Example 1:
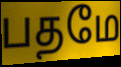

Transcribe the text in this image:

பதமே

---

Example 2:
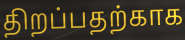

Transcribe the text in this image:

திறப்பதற்காக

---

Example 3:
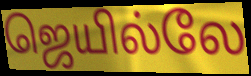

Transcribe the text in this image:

ஜெயில்லே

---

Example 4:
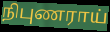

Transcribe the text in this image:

நிபுணராய்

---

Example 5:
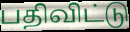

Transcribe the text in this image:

பதிவிட்டு